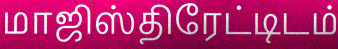
மாஜிஸ்திரேட்டிடம்